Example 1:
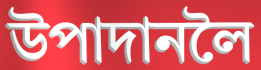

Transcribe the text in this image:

উপাদানলৈ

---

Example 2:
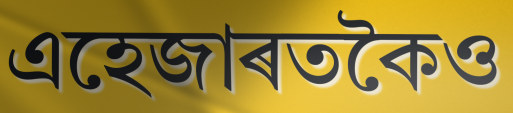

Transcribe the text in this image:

এহেজাৰতকৈও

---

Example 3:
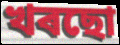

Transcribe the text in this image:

খৰছো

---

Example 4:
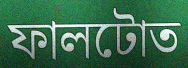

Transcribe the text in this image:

ফালটোত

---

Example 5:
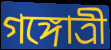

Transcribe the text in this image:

গঙ্গোত্ৰী